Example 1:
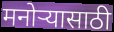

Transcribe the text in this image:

मनोऱ्यासाठी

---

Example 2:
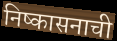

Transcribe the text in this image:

निष्कासनाची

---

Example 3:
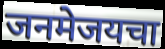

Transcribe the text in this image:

जनमेजयचा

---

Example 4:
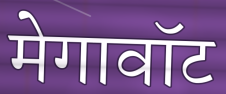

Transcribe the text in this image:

मेगावॉट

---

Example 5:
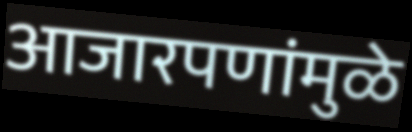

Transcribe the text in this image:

आजारपणांमुळे